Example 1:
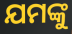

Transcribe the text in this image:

ଯମଙ୍କୁ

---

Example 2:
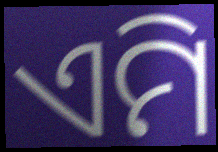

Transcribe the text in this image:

ଏମି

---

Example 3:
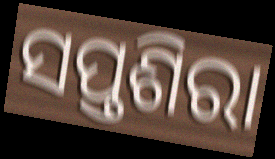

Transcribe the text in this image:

ସପ୍ତଶିରା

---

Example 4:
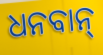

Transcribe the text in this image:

ଧନବାନ୍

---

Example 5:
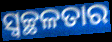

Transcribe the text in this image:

ସ୍ଵଚ୍ଛଳତାର